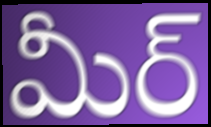
మీర్